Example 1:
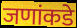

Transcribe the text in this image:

जणांकडे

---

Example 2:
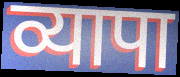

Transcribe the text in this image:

व्यापा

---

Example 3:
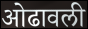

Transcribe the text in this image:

ओढावली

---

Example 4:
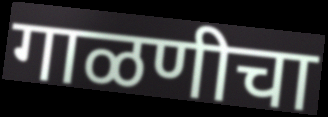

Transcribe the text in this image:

गाळणीचा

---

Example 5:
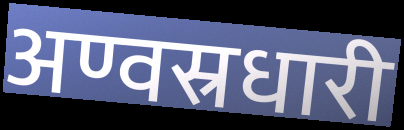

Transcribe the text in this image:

अण्वस्रधारी